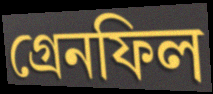
গ্রেনফিল